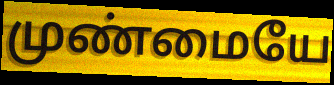
முண்மையே